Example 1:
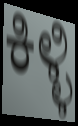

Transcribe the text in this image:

ಕಿಳ್ಳಿ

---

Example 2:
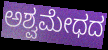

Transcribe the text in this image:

ಅಶ್ವಮೇಧದ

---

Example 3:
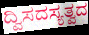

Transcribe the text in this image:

ದ್ವಿಸದಸ್ಯತ್ವದ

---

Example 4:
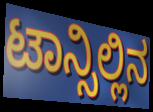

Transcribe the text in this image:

ಟಾನ್ಸಿಲ್ಲಿನ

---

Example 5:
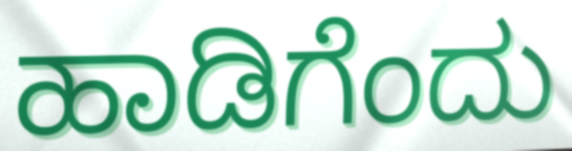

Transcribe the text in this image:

ಹಾಡಿಗೆಂದು